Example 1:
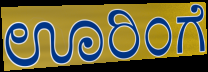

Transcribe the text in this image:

ಊರಿಂಗೆ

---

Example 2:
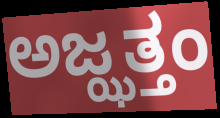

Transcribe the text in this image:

ಅಜ್ಝತ್ತಂ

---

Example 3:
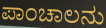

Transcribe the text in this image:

ಪಾಂಚಾಲನು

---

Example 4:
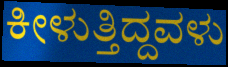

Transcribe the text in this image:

ಕೀಳುತ್ತಿದ್ದವಳು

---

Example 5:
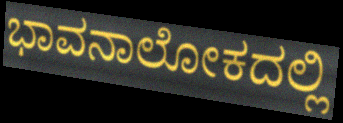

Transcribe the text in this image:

ಭಾವನಾಲೋಕದಲ್ಲಿ